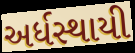
અર્ધસ્થાયી